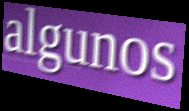
algunos